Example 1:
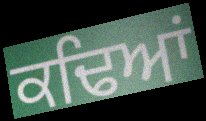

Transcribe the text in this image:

ਕਢਿਆਂ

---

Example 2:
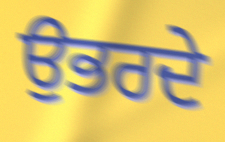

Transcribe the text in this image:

ਉਭਰਦੇ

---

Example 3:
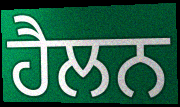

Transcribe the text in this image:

ਹੈਲਨ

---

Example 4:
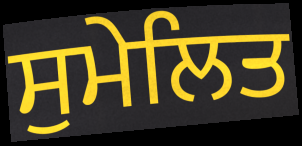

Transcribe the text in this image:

ਸੁਮੇਲਿਤ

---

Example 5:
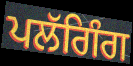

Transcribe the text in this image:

ਪਲੱਗਿੰਗ